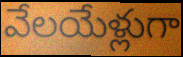
వేలయేళ్లుగా